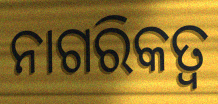
ନାଗରିକତ୍ୱ